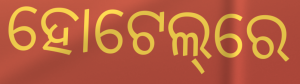
ହୋଟେଲ୍‌ରେ